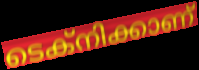
ടെക്നിക്കാണ്